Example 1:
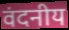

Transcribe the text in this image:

वंदनीय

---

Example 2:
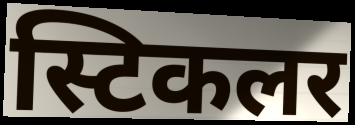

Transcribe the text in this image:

स्टिकलर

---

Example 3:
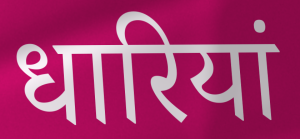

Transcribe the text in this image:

धारियां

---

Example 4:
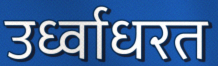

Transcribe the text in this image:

उर्ध्वाधरत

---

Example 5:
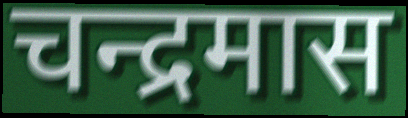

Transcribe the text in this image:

चन्द्रमास